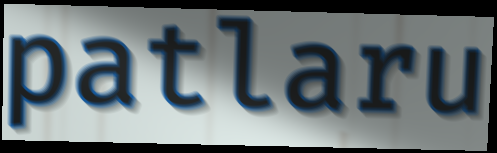
patlaru